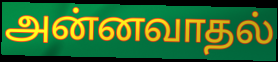
அன்னவாதல்